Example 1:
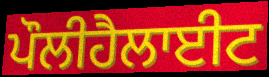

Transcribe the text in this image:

ਪੌਲੀਹੈਲਾਈਟ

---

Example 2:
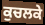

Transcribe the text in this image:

ਕੁਚਲਕੇ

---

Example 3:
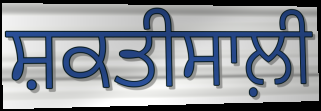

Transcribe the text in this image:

ਸ਼ਕਤੀਸਾਲ਼ੀ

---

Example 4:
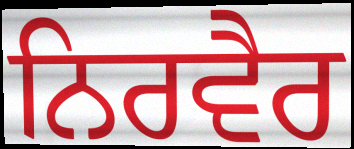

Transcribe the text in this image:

ਨਿਰਵੈਰ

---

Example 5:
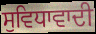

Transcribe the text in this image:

ਸੁਵਿਧਾਵਾਦੀ